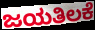
ಜಯತಿಲಕೆ